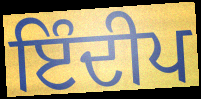
ਇੰਦੀਪ